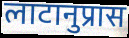
लाटानुप्रास